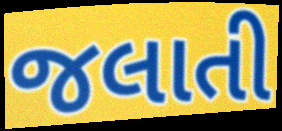
જલાતી